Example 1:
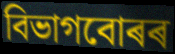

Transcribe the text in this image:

বিভাগবোৰৰ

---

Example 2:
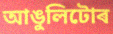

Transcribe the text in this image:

আঙুলিটোৰ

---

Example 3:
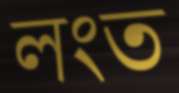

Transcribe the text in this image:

লংত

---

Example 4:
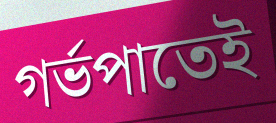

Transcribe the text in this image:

গৰ্ভপাতেই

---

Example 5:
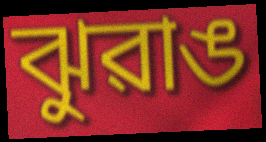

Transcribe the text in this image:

ঝুৱাঙ